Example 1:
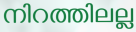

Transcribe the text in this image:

നിറത്തിലല്ല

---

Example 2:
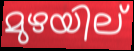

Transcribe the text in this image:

മുഴയില്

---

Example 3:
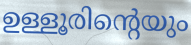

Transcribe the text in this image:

ഉള്ളൂരിന്റെയും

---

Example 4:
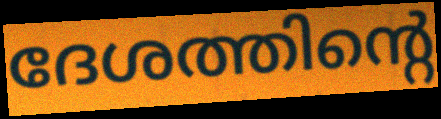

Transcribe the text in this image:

ദേശത്തിന്റെ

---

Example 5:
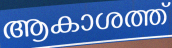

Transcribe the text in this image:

ആകാശത്ത്